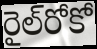
రైల్‌రోకో